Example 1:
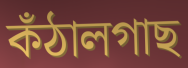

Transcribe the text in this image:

কঁঠালগাছ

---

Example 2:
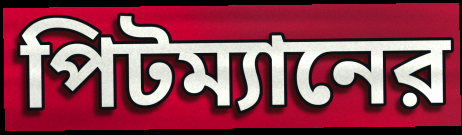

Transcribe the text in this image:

পিটম্যানের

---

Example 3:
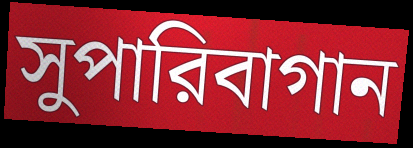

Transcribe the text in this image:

সুপারিবাগান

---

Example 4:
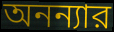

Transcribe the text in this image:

অনন্যার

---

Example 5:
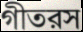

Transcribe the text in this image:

গীতরস